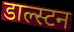
डाल्स्टन